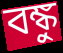
বঙ্কু